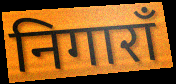
निगाराँ